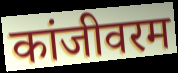
कांजीवरम